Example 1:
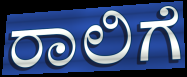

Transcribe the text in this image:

ರಾಲಿಗೆ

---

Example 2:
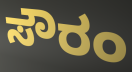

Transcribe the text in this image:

ಸೌರಂ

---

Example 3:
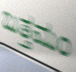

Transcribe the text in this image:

ಬತ್ತಮಂ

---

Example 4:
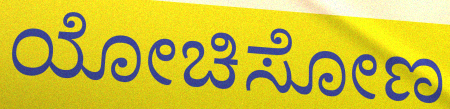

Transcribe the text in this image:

ಯೋಚಿಸೋಣ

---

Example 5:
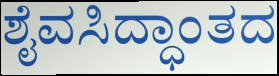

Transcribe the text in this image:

ಶೈವಸಿದ್ಧಾಂತದ